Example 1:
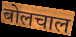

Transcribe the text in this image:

बोलचाल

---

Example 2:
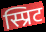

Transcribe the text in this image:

स्प्रिट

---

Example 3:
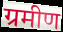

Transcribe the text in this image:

ग्रमीण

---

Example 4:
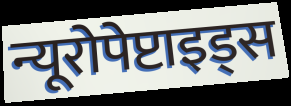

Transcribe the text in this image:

न्यूरोपेप्टाइड्स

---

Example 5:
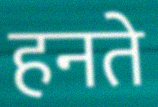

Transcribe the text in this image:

हनते